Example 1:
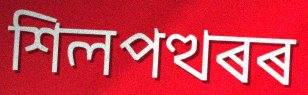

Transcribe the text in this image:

শিলপত্থৰৰ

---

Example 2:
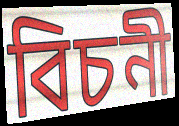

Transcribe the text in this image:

বিচনী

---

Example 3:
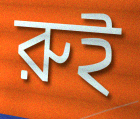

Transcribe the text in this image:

ৰুই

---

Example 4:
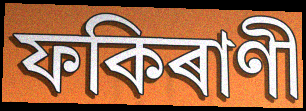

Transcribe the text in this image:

ফকিৰাণী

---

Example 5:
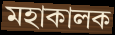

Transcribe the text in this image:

মহাকালক